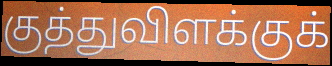
குத்துவிளக்குக்